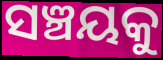
ସଞ୍ଚୟକୁ